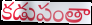
కడుపంతా